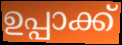
ഉപ്പാക്ക്